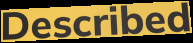
Described